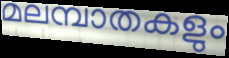
മലമ്പാതകളും